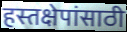
हस्तक्षेपांसाठी